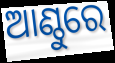
ଆଣ୍ଠୁରେ